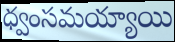
ధ్వంసమయ్యాయి